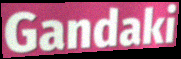
Gandaki